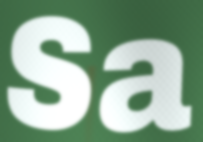
Sa